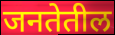
जनतेतील